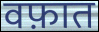
वफ़ात